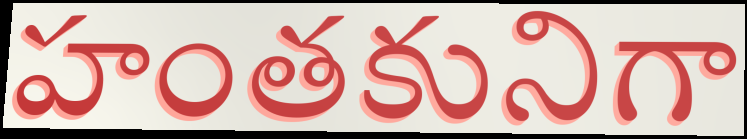
హంతకునిగా